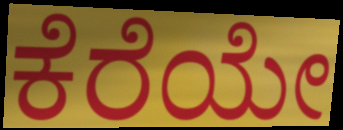
ಕೆರೆಯೇ